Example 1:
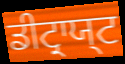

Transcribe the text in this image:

ਡੀਟ੍ਰਾਯ੍ਟ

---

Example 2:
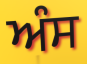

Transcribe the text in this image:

ਅੰਸ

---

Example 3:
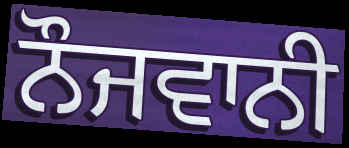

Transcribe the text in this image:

ਨੌਜਵਾਨੀ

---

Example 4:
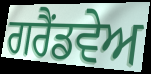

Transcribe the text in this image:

ਗਰੈਂਡਵੇਅ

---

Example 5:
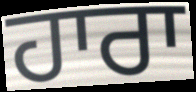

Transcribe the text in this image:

ਹਾਰਾ